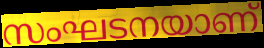
സംഘടനയാണ്